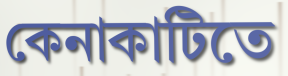
কেনাকাটিতে